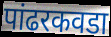
पांढरकवडा